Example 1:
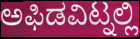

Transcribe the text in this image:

ಅಫಿಡವಿಟ್ನಲ್ಲಿ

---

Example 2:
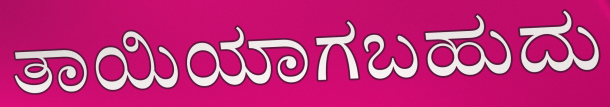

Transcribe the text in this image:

ತಾಯಿಯಾಗಬಹುದು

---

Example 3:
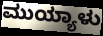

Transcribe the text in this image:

ಮುಯ್ಯಾಳು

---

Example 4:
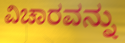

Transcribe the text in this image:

ವಿಚಾರವನ್ನು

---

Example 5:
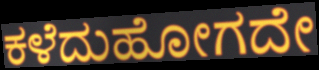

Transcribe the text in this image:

ಕಳೆದುಹೋಗದೇ